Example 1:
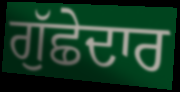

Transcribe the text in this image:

ਗੁੱਛੇਦਾਰ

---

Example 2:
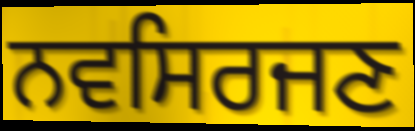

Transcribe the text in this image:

ਨਵਸਿਰਜਣ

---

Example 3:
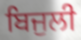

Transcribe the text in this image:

ਬਿਜੁਲੀ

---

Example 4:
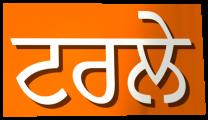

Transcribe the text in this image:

ਟਰਲੇ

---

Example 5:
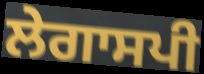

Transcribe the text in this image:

ਲੇਗਾਸਪੀ